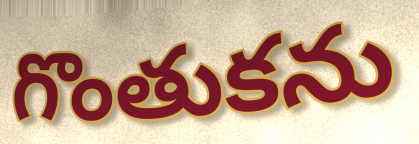
గొంతుకను